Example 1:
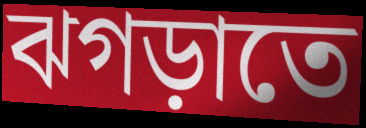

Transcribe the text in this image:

ঝগড়াতে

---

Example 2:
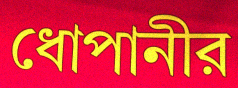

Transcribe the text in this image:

ধোপানীর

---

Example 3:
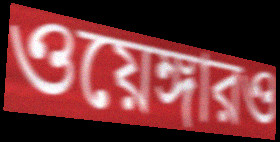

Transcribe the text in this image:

ওয়েঙ্গারও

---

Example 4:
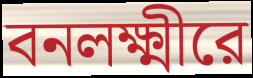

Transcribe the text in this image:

বনলক্ষ্মীরে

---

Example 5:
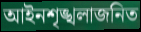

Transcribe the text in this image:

আইনশৃঙ্খলাজনিত